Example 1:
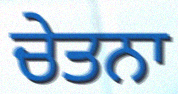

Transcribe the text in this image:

ਚੇਤਨਾ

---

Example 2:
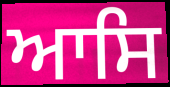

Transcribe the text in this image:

ਆਸਿ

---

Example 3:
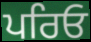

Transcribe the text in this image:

ਪਰਿਓ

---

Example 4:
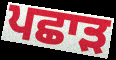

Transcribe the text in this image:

ਪਛਾੜ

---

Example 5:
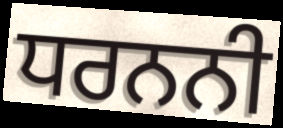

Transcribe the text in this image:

ਧਰਨਨੀ